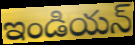
ఇండియన్